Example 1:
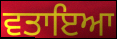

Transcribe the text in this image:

ਵਤਾਇਆ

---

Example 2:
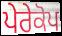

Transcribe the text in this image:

ਪੇਰੇਕੋਪ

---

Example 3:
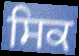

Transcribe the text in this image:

ਸਿਕ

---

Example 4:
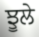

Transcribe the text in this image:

ਝੂਲੇ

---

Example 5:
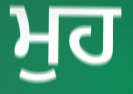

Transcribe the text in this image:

ਮੁਹ